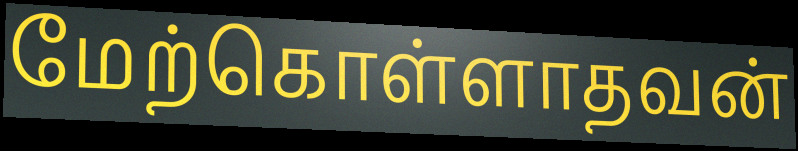
மேற்கொள்ளாதவன்